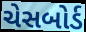
ચેસબોર્ડ